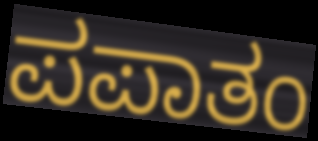
ಪಪಾತಂ